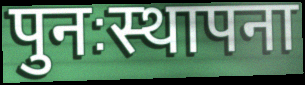
पुनःस्थापना